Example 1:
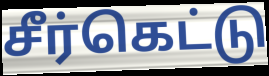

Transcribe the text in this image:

சீர்கெட்டு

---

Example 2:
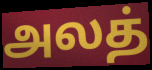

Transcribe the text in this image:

அலத்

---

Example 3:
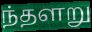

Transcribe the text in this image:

ந்தளறு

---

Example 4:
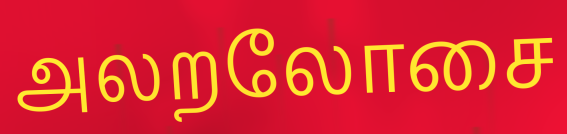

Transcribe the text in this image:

அலறலோசை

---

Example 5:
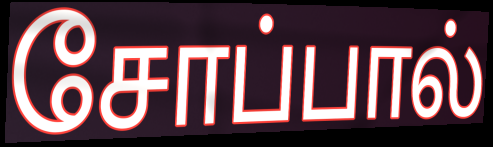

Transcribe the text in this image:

சோப்பால்